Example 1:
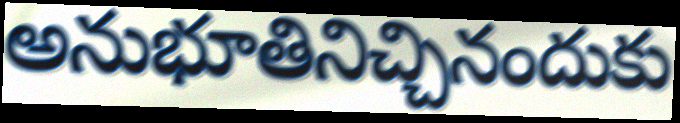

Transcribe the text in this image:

అనుభూతినిచ్చినందుకు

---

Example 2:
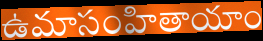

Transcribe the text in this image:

ఉమాసంహితాయాం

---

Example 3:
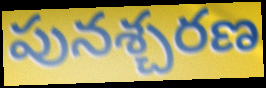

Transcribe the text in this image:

పునశ్చరణ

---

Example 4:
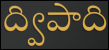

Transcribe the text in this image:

ద్విపాది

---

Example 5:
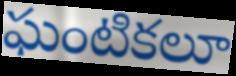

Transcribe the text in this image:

ఘంటికలూ